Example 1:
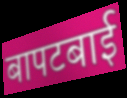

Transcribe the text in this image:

बापटबाई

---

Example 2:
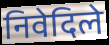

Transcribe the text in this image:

निवेदिले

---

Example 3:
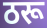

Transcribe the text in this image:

ठरू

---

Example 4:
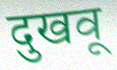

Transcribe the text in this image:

दुखवू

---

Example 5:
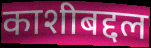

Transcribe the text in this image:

काशीबद्दल